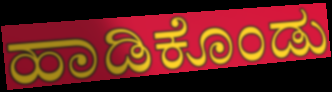
ಹಾಡಿಕೊಂಡು